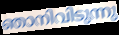
ഞാനിവിടുന്നു